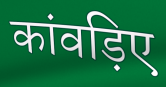
कांवड़िए